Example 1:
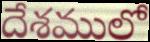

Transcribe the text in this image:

దేశములో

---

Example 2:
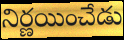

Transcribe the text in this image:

నిర్ణయించేడు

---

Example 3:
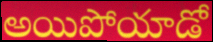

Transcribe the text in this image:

అయిపోయాడో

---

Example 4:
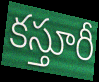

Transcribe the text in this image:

కస్తూరీ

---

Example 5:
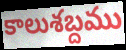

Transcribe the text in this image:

కాలుశబ్దము